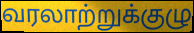
வரலாற்றுக்குழு